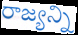
రాజ్యన్ని